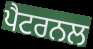
ਪੈਟਰਨਲ